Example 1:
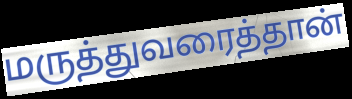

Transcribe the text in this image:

மருத்துவரைத்தான்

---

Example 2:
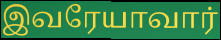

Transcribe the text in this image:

இவரேயாவார்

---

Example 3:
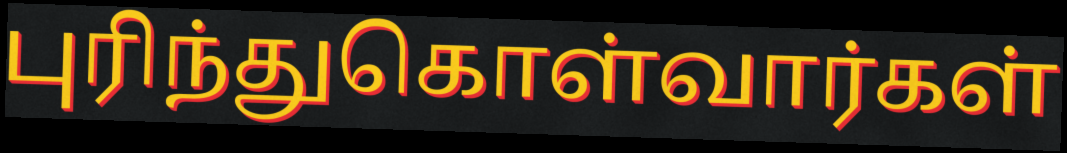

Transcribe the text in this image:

புரிந்துகொள்வார்கள்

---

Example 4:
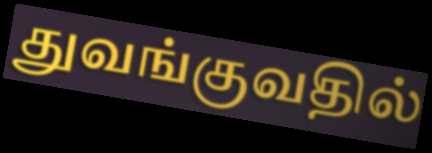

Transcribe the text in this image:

துவங்குவதில்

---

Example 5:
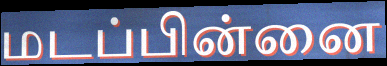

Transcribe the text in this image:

மடப்பின்னை